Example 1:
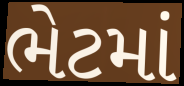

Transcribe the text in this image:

ભેટમાં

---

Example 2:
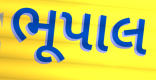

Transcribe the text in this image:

ભૂપાલ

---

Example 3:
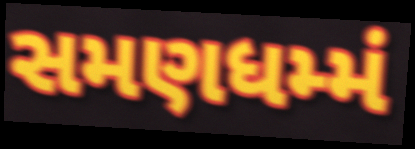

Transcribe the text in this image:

સમણધમ્મં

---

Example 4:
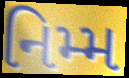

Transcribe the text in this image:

નિમ્મ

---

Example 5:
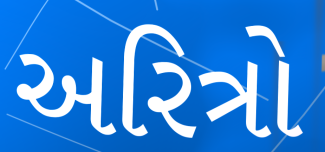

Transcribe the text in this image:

અરિત્રો